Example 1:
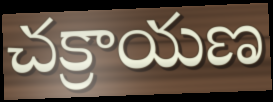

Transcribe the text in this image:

చక్రాయణ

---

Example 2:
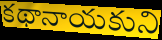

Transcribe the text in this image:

కథానాయకుని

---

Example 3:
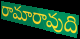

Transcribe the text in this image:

రామారావుది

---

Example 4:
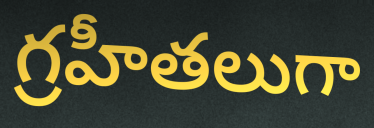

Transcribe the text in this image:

గ్రహీతలుగా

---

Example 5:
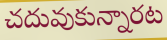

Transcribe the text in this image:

చదువుకున్నారట